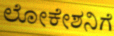
ಲೋಕೇಶನಿಗೆ